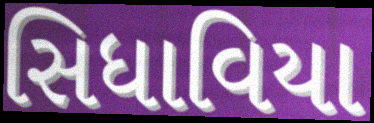
સિધાવિયા